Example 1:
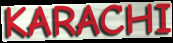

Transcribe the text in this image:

KARACHI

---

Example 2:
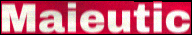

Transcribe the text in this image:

Maieutic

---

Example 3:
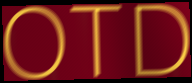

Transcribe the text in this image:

OTD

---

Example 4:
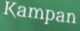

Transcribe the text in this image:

Kampan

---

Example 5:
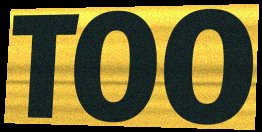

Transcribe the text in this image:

TOO